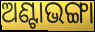
ଅଣ୍ଟାଭଙ୍ଗା